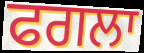
ਫਗਲਾ